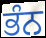
ਭੰਨ